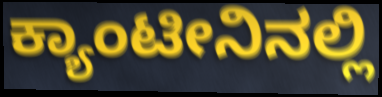
ಕ್ಯಾಂಟೀನಿನಲ್ಲಿ